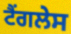
ਟੈਂਗਲੇਸ